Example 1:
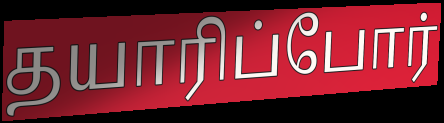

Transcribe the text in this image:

தயாரிப்போர்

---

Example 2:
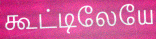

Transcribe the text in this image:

கூட்டிலேயே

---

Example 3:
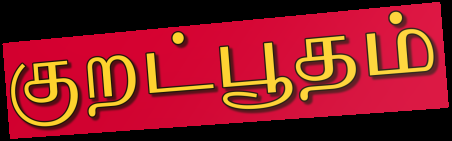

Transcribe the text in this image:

குறட்பூதம்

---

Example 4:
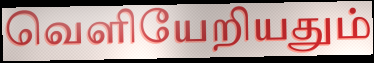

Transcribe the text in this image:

வெளியேறியதும்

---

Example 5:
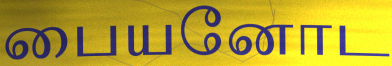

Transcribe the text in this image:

பையனோட